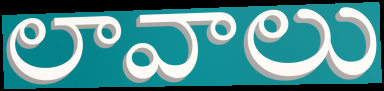
లావాలు